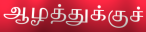
ஆழத்துக்குச்